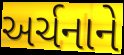
અર્ચનાને